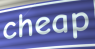
cheap